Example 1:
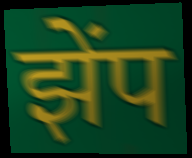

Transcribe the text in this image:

झेंप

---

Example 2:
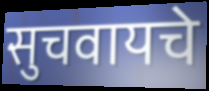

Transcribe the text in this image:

सुचवायचे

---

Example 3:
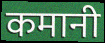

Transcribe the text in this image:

कमानी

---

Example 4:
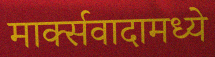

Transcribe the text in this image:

मार्क्सवादामध्ये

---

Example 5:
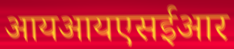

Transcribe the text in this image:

आयआयएसईआर